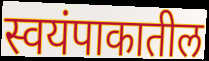
स्वयंपाकातील